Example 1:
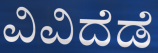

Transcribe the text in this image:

ವಿವಿದೆಡೆ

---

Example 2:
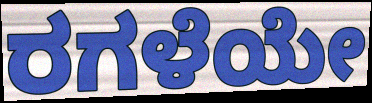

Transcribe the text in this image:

ರಗಳೆಯೇ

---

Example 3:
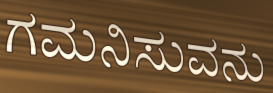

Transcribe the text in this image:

ಗಮನಿಸುವನು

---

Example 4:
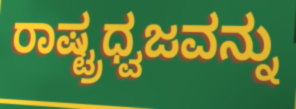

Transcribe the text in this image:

ರಾಷ್ಟ್ರಧ್ವಜವನ್ನು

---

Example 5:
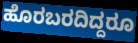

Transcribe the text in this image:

ಹೊರಬರದಿದ್ದರೂ